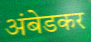
अंबेडकर